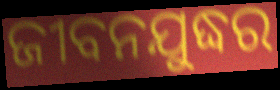
ଜୀବନଯୁଦ୍ଧର